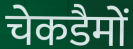
चेकडैमों